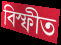
বিস্ফীত